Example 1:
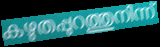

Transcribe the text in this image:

കഴുതപ്പുറത്തുനിന്ന്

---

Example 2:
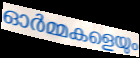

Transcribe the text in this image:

ഓർമ്മകളെയും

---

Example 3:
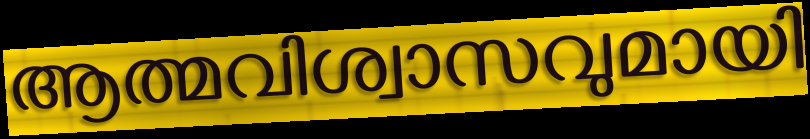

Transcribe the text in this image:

ആത്മവിശ്വാസവുമായി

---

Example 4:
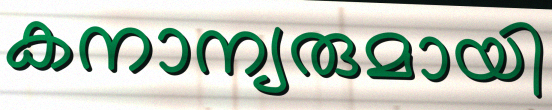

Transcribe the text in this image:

കനാന്യരുമായി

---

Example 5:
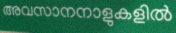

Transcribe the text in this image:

അവസാനനാളുകളിൽ